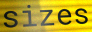
sizes